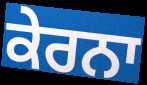
ਕੇਰਨਾ